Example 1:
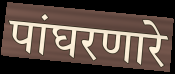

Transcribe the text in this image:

पांघरणारे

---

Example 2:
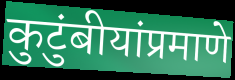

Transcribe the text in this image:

कुटुंबीयांप्रमाणे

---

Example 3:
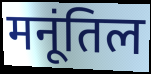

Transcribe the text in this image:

मनूंतिल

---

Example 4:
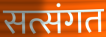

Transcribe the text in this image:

सत्संगत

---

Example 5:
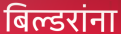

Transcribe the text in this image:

बिल्डरांना